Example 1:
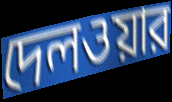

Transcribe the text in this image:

দেলওয়ার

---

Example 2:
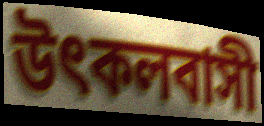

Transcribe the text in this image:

উৎকলবাসী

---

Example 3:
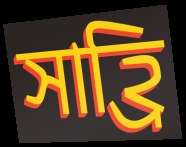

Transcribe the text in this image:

সাহ্রি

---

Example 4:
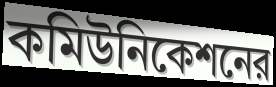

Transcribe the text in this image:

কমিউনিকেশনের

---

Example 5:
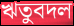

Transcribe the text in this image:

ঋতুবদল